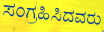
ಸಂಗ್ರಹಿಸಿದವರು